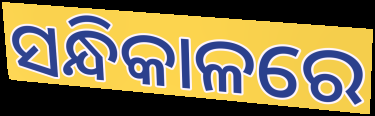
ସନ୍ଧିକାଳରେ